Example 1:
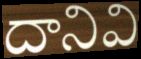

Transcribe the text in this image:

దానివి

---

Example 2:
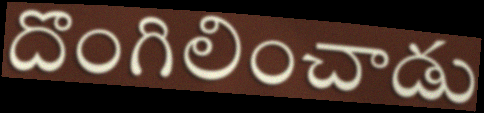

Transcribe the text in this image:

దొంగిలించాడు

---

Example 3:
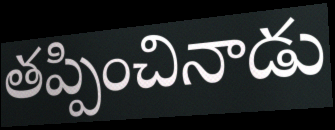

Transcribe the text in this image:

తప్పించినాడు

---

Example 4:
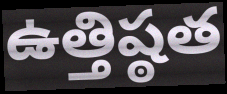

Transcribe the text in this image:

ఉత్తిష్ఠత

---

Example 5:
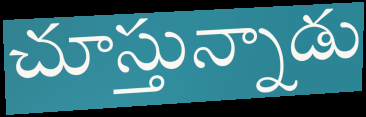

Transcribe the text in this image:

చూస్తున్నాడు